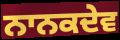
ਨਾਨਕਦੇਵ